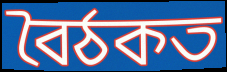
বৈঠকত